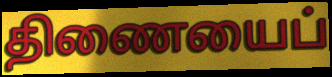
திணையைப்